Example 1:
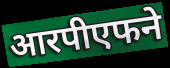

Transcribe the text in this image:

आरपीएफने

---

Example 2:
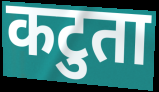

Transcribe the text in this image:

कटुता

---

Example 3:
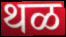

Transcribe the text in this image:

थळ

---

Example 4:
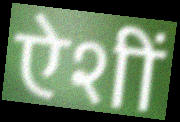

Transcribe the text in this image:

ऐशीं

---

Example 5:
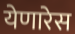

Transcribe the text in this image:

येणारेस